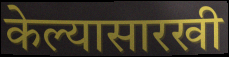
केल्यासारखी